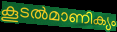
കൂടൽമാണിക്യം